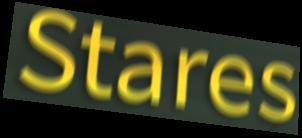
Stares